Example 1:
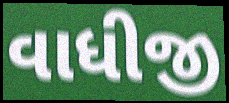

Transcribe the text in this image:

વાધીજી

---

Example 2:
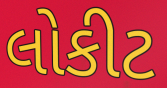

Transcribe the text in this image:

લોકીટ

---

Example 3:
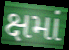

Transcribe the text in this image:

ક્ષમાં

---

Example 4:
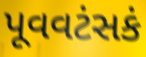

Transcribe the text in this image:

પૂવવટંસકં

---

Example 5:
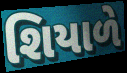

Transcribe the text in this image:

શિયાળે